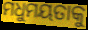
ମଧୁମୟତାକୁ